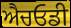
ਐਚਓਡੀ